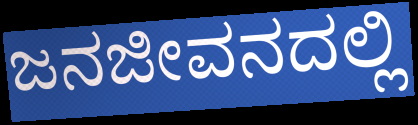
ಜನಜೀವನದಲ್ಲಿ